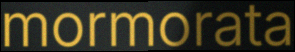
mormorata